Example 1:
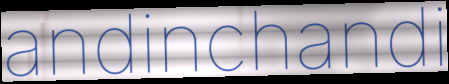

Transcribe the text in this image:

andinchandi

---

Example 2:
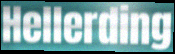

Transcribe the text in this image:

Hellerding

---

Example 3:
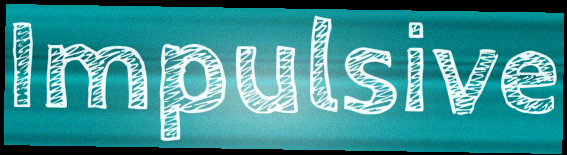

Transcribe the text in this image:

Impulsive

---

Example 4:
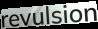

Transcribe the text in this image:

revulsion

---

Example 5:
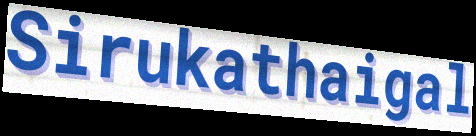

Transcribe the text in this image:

Sirukathaigal